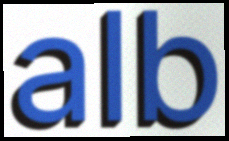
alb